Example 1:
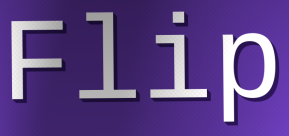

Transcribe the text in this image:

Flip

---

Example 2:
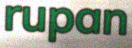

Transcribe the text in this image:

rupan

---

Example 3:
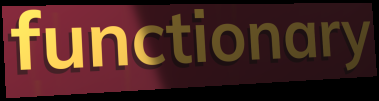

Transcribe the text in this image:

functionary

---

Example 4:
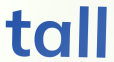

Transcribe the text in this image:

tall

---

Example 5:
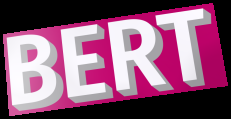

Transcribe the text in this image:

BERT